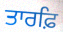
ਤਾਰਫ਼ਿ